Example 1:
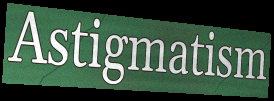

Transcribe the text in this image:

Astigmatism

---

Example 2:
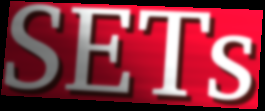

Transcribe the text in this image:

SETs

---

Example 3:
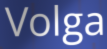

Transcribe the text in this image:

Volga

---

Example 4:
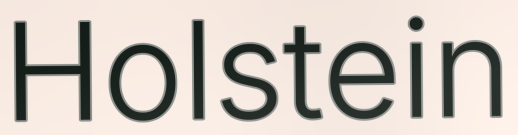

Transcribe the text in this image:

Holstein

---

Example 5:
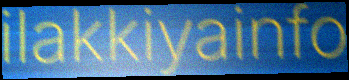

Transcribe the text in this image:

ilakkiyainfo